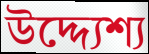
উদ্দ্যেশ্য